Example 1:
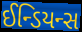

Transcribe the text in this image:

ઈન્ડિયન્સ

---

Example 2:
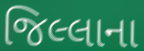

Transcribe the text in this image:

જિલ્લાના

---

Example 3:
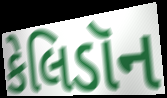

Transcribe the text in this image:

કેલિડૉન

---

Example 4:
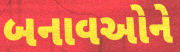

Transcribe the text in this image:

બનાવઓને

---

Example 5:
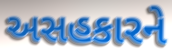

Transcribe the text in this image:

અસહકારને